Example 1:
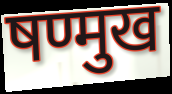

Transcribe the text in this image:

षण्मुख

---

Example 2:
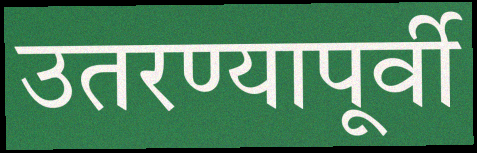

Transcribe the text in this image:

उतरण्यापूर्वी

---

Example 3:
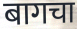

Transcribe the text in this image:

बागचा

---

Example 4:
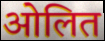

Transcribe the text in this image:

ओलित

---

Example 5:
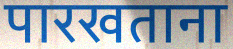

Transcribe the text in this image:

पारखताना